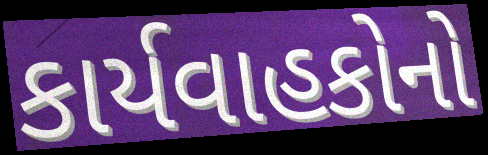
કાર્યવાહકોનો